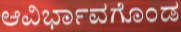
ಆವಿರ್ಭಾವಗೊಂಡ